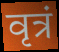
वृत्रं